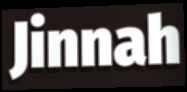
Jinnah